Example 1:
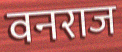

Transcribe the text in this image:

वनराज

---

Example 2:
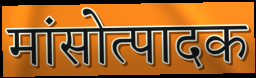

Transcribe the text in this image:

मांसोत्पादक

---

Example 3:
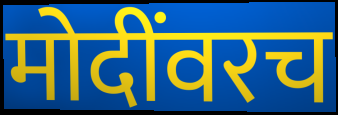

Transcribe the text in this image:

मोदींवरच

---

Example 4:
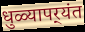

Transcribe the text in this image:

धुळ्यापर्यंत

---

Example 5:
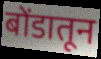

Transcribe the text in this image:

बोंडातून